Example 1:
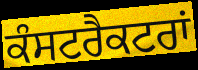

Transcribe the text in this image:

ਕੰਸਟਰੈਕਟਰਾਂ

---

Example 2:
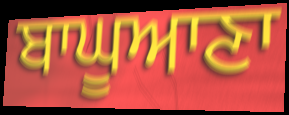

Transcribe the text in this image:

ਬਾਘੂਆਣਾ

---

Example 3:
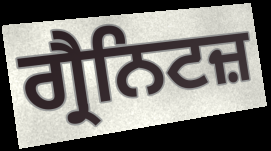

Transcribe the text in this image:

ਗ੍ਰੈਨਿਟਜ਼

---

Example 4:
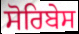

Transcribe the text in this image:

ਸੋਰਿਬੇਸ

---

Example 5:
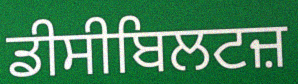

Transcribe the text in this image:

ਡੀਸੀਬਿਲਟਜ਼